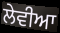
ਲੇਵੀਆ